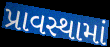
પ્રાવસ્થામાં